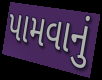
પામવાનું